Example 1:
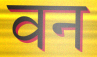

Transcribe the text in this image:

वन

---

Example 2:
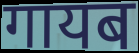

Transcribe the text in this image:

गायब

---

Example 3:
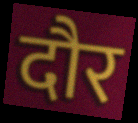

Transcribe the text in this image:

दौर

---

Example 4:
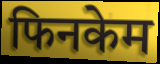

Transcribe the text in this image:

फिनकेम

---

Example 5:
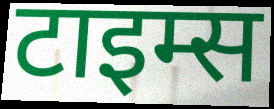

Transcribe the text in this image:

टाइम्स